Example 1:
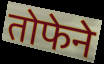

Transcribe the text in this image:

तोफेने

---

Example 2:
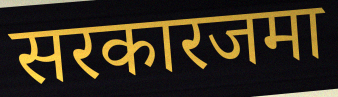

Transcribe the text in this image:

सरकारजमा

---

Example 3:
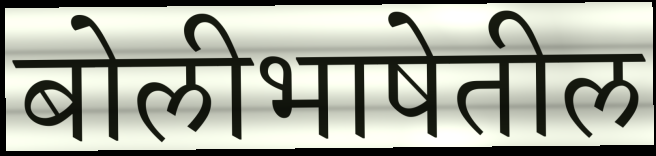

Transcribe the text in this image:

बोलीभाषेतील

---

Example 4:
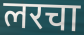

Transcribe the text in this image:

लरचा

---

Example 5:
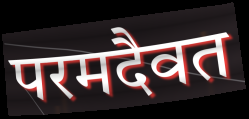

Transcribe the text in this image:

परमदैवत